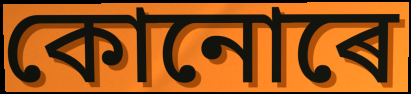
কোনোৰে